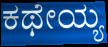
ಕಥೇಯ್ಯ